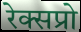
रेक्सप्रो